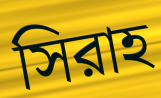
সিরাহ